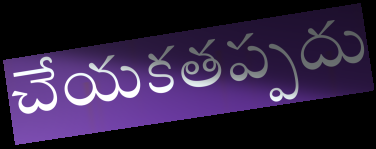
చేయకతప్పదు